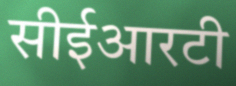
सीईआरटी